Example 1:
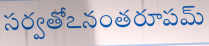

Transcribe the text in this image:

సర్వతోఽనంతరూపమ్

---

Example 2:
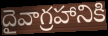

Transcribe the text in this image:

దైవాగ్రహానికి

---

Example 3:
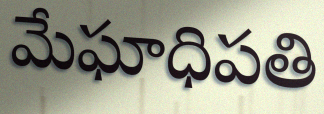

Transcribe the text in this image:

మేఘాధిపతి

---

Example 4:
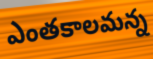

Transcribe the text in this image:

ఎంతకాలమన్న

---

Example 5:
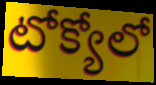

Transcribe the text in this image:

టోక్యోలో